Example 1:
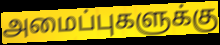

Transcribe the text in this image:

அமைப்புகளுக்கு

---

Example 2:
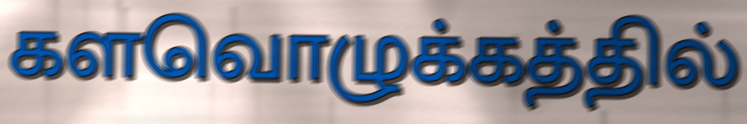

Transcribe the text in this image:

களவொழுக்கத்தில்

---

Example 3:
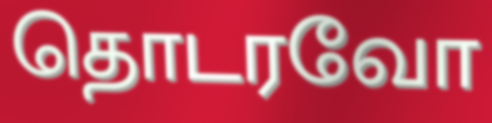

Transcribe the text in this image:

தொடரவோ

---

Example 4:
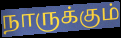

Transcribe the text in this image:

நாருக்கும்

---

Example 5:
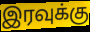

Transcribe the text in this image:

இரவுக்கு